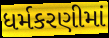
ધર્મકરણીમાં